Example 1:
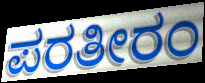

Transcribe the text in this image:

ಪರತೀರಂ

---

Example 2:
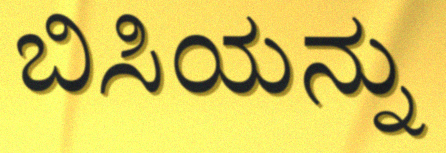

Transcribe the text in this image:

ಬಿಸಿಯನ್ನು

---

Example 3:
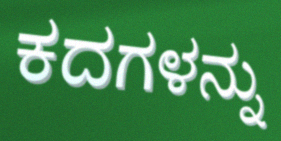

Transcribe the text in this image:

ಕದಗಳನ್ನು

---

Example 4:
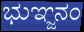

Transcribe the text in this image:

ಭುಞ್ಜನಂ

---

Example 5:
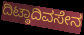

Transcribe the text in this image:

ದಿಟ್ಠಾದಿವಸೇನ